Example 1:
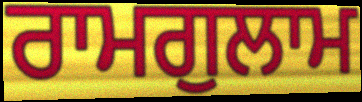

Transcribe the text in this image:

ਰਾਮਗੁਲਾਮ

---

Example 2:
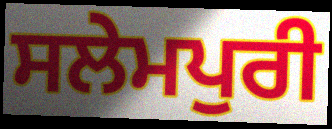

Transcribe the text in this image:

ਸਲੇਮਪੁਰੀ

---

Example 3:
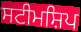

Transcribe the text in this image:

ਸਟੀਮਸ਼ਿਪ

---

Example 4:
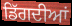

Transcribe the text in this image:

ਡਿੱਗਦੀਆਂ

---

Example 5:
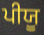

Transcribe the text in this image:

ਪੀਯੂ